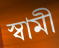
স্বামী